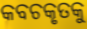
କବଚକୃତକୁ